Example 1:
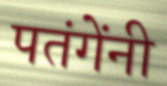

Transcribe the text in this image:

पतंगेंनी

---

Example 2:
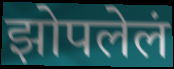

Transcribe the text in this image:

झोपलेलं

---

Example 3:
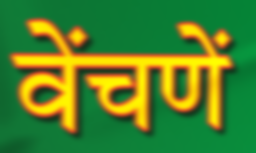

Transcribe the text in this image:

वेंचणें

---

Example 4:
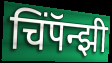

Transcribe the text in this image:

चिंपॅन्झी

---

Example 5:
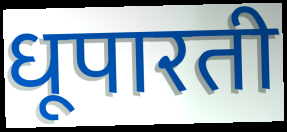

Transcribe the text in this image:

धूपारती